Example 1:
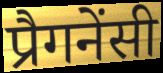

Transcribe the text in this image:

प्रैगनेंसी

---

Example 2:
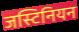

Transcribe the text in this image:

जस्टिनियन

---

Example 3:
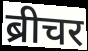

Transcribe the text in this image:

ब्रीचर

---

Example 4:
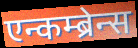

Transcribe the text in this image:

एन्कम्ब्रेन्स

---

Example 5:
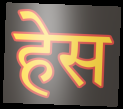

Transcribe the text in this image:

हेस